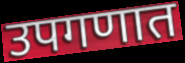
उपगणात